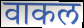
वाकल